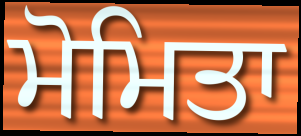
ਮੋਮਿਤਾ